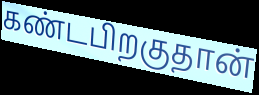
கண்டபிறகுதான்